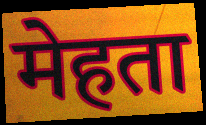
मेहता